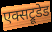
एक्सट्रूडेड